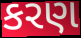
કરણ